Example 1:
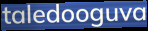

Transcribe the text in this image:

taledooguva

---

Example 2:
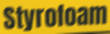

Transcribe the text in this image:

Styrofoam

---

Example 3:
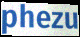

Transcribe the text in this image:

phezu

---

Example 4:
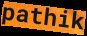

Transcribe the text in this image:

pathik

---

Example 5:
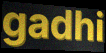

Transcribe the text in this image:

gadhi